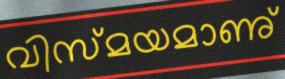
വിസ്മയമാണു്